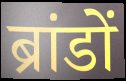
ब्रांडों